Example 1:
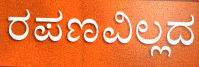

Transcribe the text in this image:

ರಪಣವಿಲ್ಲದ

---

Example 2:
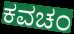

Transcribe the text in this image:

ಕವಚಂ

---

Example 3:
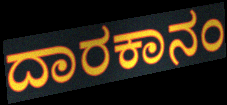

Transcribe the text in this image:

ದಾರಕಾನಂ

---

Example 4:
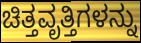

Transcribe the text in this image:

ಚಿತ್ತವೃತ್ತಿಗಳನ್ನು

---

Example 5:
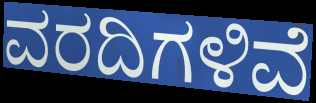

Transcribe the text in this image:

ವರದಿಗಳಿವೆ